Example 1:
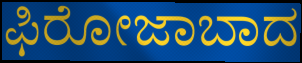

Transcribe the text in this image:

ಫಿರೋಜಾಬಾದ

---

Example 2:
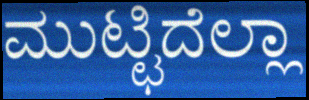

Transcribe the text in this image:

ಮುಟ್ಟಿದೆಲ್ಲಾ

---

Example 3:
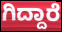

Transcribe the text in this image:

ಗಿದ್ದಾರೆ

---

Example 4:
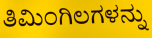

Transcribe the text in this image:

ತಿಮಿಂಗಿಲಗಳನ್ನು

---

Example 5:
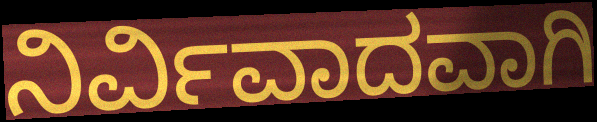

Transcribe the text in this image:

ನಿರ್ವಿವಾದವಾಗಿ